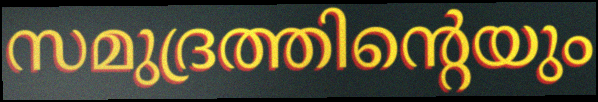
സമുദ്രത്തിന്റെയും